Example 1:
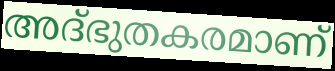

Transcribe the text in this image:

അദ്ഭുതകരമാണ്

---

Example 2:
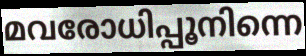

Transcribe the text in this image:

മവരോധിപ്പൂനിന്നെ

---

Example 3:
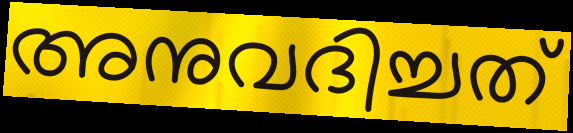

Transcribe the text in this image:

അനുവദിച്ചത്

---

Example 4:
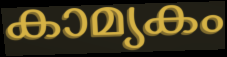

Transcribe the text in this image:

കാമ്യകം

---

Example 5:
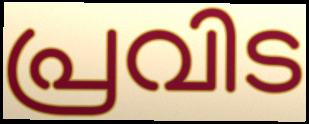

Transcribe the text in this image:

പ്രവിട